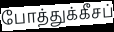
போத்துக்கீசப்